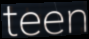
teen